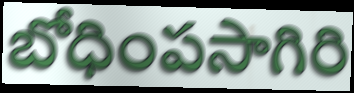
బోధింపసాగిరి